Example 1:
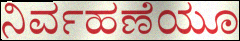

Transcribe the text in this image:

ನಿರ್ವಹಣೆಯೂ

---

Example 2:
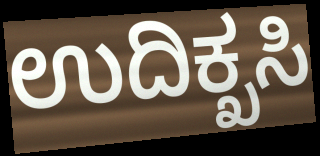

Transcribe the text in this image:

ಉದಿಕ್ಖಸಿ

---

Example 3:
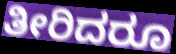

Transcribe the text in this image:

ತೀರಿದರೂ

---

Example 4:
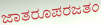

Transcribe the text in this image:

ಜಾತರೂಪರಜತಂ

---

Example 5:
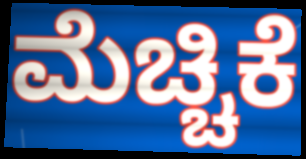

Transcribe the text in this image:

ಮೆಚ್ಚಿಕೆ